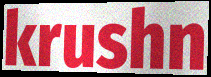
krushn